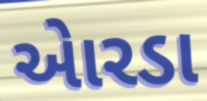
એારડા